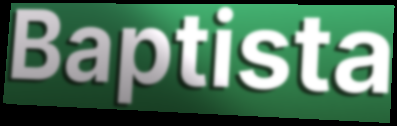
Baptista